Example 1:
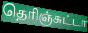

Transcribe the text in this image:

தெரிஞ்சுட்டா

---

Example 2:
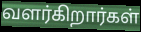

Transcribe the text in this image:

வளர்கிறார்கள்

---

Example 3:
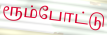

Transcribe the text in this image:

ரூம்போட்டு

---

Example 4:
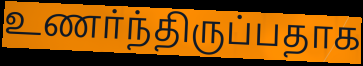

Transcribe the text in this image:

உணர்ந்திருப்பதாக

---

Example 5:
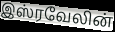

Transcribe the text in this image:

இஸ்ரவேலின்